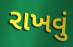
રાખવું